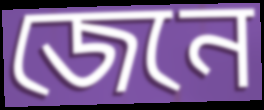
জেনে